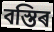
বস্তিৰ